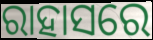
ରାହାସରେ